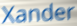
Xander